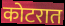
कोटरात